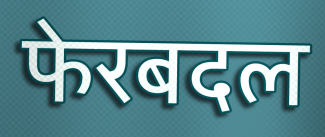
फेरबदल